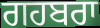
ਗਹਬਰਾ